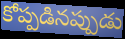
కోప్పడినప్పుడు